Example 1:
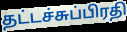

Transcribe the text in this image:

தட்டச்சுப்பிரதி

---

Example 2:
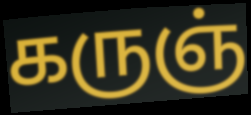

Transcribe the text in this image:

கருஞ்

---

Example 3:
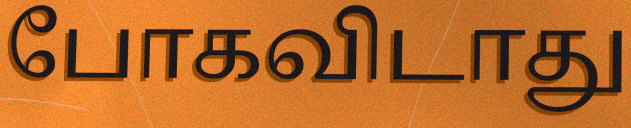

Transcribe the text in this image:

போகவிடாது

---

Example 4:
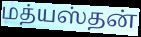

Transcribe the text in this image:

மத்யஸ்தன்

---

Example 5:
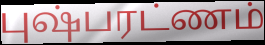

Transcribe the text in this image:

புஷ்பரட்ணம்